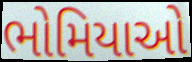
ભોમિયાઓ